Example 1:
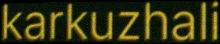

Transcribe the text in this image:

karkuzhali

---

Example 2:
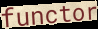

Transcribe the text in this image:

functor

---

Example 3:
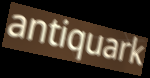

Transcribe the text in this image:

antiquark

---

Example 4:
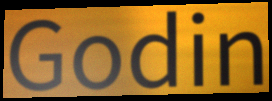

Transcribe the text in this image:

Godin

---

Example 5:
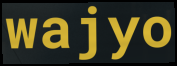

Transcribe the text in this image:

wajyo